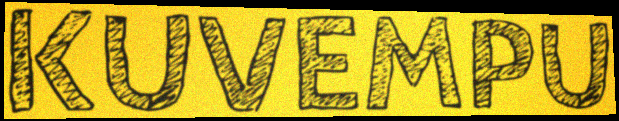
KUVEMPU